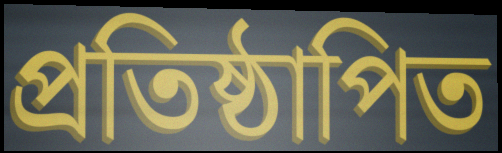
প্ৰতিষ্ঠাপিত